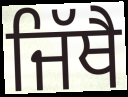
ਜਿੱਥੈ